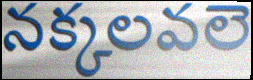
నక్కలవలె